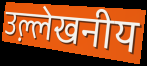
उल्ल़ेखनीय